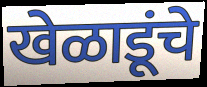
खेळाडूंचे